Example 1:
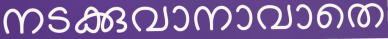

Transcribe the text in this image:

നടക്കുവാനാവാതെ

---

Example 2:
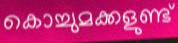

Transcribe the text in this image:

കൊച്ചുമക്കളുണ്ട്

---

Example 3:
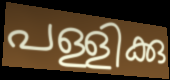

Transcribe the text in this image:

പള്ളിക്കു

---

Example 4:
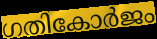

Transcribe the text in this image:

ഗതികോർജം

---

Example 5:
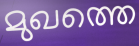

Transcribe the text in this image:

മുഖത്തെ